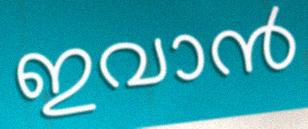
ഇവാൻ